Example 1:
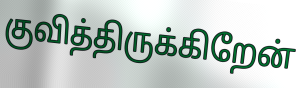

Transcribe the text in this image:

குவித்திருக்கிறேன்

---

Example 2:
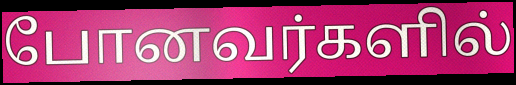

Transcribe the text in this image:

போனவர்களில்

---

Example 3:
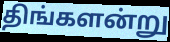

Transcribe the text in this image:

திங்களன்று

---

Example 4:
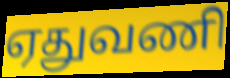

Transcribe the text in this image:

ஏதுவணி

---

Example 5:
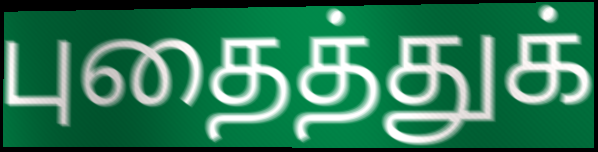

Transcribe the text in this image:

புதைத்துக்